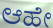
ಆಹೇ